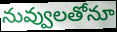
నువ్వులతోనూ